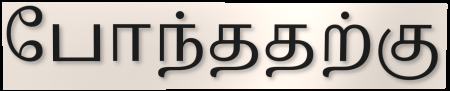
போந்ததற்கு